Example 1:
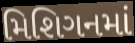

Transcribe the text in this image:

મિશિગનમાં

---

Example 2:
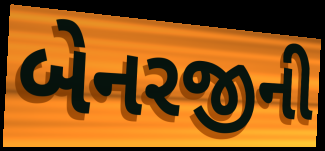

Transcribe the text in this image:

બેનરજીની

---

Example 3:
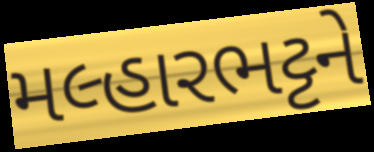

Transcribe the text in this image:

મલ્હારભટ્ટને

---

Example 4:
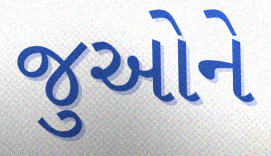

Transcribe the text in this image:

જુઓને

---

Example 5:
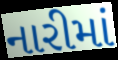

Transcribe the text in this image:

નારીમાં